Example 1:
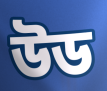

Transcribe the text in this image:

উড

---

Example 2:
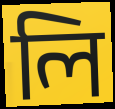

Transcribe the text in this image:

লি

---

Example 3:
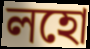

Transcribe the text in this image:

লহো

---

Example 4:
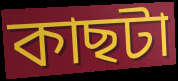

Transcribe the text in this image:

কাছটা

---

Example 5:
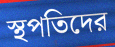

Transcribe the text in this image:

স্থপতিদের